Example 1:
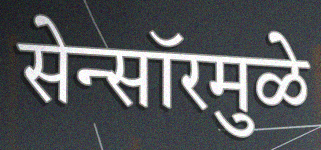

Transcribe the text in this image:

सेन्सॉरमुळे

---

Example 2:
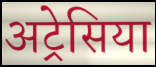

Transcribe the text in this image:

अट्रेसिया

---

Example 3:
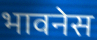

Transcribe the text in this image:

भावनेस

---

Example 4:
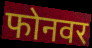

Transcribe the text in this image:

फोनवर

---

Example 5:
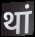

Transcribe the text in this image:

थां